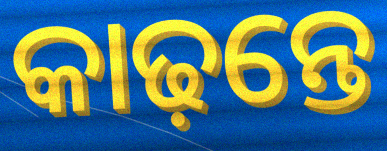
କାଢ଼ନ୍ତେ